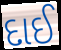
દાઈ